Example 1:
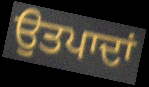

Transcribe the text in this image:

ਉਤਪਾਦਾਂ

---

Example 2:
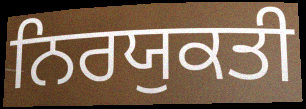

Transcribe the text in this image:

ਨਿਰਯੁਕਤੀ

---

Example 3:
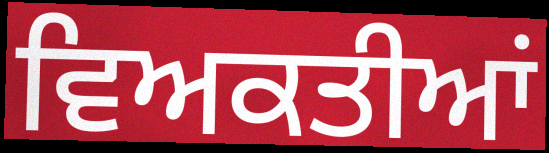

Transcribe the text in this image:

ਵਿਅਕਤੀਆਂ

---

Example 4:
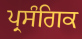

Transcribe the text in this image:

ਪ੍ਰਸੰਗਿਕ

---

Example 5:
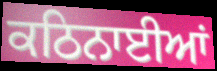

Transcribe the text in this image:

ਕਠਿਨਾਈਆਂ